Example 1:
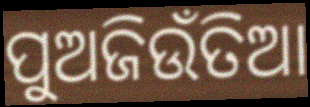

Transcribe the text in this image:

ପୁଅଜିଉଁତିଆ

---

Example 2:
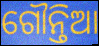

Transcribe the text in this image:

ଗୌନ୍ତିଆ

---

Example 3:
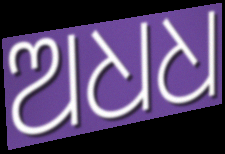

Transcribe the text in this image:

ଅଧଧ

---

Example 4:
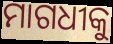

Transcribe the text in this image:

ମାଗଧୀକୁ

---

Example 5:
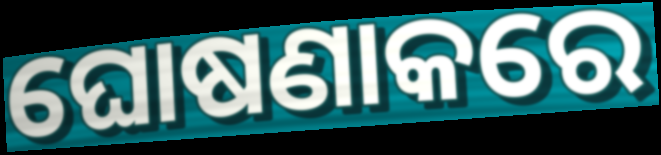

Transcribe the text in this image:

ଘୋଷଣାକରେ